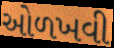
ઓળખવી